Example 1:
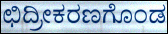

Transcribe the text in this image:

ಛಿದ್ರೀಕರಣಗೊಂಡ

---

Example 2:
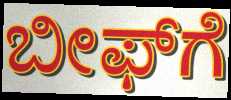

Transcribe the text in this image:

ಬೀಫ್‌ಗೆ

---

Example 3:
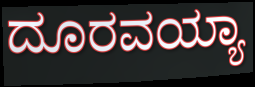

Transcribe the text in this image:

ದೂರವಯ್ಯಾ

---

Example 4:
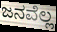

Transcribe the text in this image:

ಜನವೆಲ್ಲ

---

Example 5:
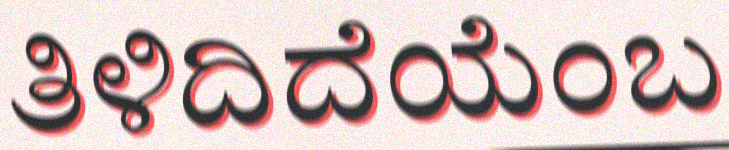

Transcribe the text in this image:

ತಿಳಿದಿದೆಯೆಂಬ